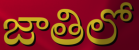
జాతిలో